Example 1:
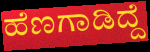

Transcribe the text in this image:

ಹೆಣಗಾಡಿದ್ದೆ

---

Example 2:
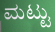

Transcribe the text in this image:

ಮಟ್ಟು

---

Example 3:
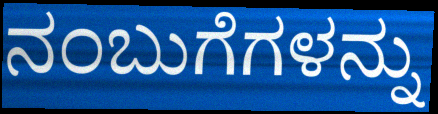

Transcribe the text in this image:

ನಂಬುಗೆಗಳನ್ನು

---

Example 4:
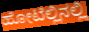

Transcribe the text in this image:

ಹೋಟೆಲ್ಲಿನಲ್ಲಿ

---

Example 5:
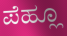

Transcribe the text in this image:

ಪೆಹ್ಲೂ